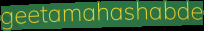
geetamahashabde